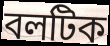
বলটিক